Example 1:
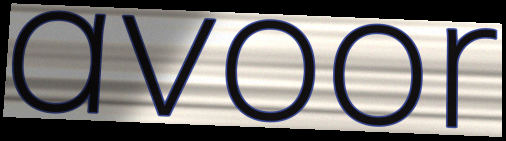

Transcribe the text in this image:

avoor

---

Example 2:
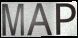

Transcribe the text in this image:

MAP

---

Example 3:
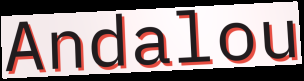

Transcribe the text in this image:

Andalou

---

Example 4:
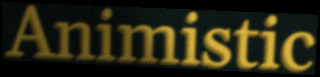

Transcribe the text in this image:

Animistic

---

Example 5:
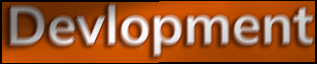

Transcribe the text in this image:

Devlopment